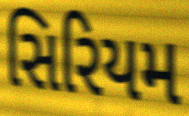
સિરિયમ